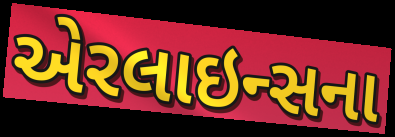
એરલાઇન્સના